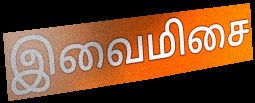
இவைமிசை